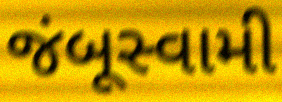
જંબૂસ્વામી